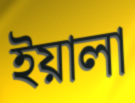
ইয়ালা